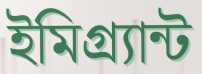
ইমিগ্র্যান্ট